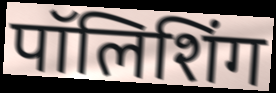
पॉलिशिंग